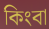
কিংবা